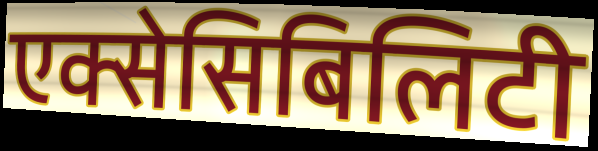
एक्सेसिबिलिटी